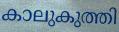
കാലുകുത്തി